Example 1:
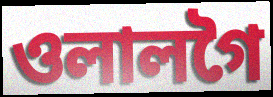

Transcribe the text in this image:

ওলালগৈ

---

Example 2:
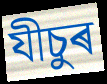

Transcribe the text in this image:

যীচুৰ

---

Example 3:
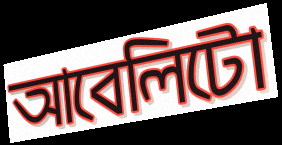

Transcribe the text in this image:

আবেলিটো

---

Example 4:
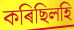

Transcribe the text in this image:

কৰিছিলহি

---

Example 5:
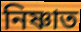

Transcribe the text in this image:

নিষ্ণাত